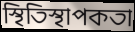
স্থিতিস্থাপকতা